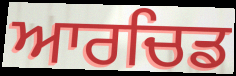
ਆਰਚਿਡ